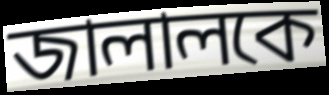
জালালকে